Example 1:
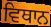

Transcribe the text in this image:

ਵਿਥਾਨ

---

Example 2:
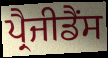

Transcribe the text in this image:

ਪ੍ਰੈਜੀਡੈਂਸ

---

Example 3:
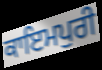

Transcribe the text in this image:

ਕਾਇਮਪੁਰੀ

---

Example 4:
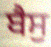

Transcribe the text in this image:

ਬੈਸੁ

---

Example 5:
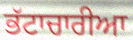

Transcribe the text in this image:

ਭੱਟਾਚਾਰੀਆ